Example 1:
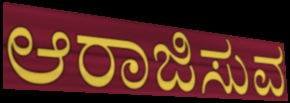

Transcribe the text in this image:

ಆರಾಜಿಸುವ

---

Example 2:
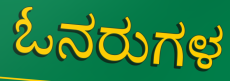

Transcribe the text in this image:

ಓನರುಗಳ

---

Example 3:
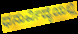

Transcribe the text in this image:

ಧನುರ್ವಿದ್ಯೆಯಲ್ಲಿ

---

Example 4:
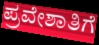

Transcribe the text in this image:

ಪ್ರವೇಶಾತಿಗೆ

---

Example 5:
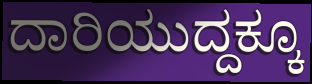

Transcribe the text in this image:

ದಾರಿಯುದ್ದಕ್ಕೂ